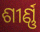
ଶୀର୍ଣ୍ଣ